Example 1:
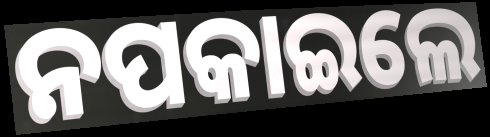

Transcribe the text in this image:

ନପକାଇଲେ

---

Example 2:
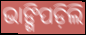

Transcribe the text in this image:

ଭାଙ୍ଗିପଡ଼ିଲି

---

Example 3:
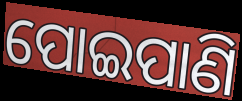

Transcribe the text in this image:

ପୋଇପାଣି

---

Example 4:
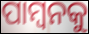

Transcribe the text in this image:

ପାମ୍ବନକୁ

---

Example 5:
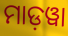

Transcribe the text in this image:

ମାଡ଼ୱା